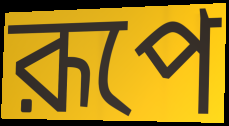
রূপে